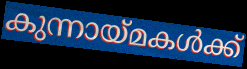
കുന്നായ്മകൾക്ക്